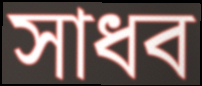
সাধব